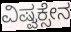
ವಿಷ್ವಕ್ಸೇನ